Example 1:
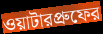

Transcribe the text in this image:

ওয়াটারপ্রুফের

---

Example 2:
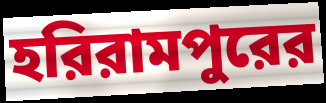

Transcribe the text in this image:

হরিরামপুরের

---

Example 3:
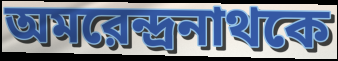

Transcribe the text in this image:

অমরেন্দ্রনাথকে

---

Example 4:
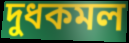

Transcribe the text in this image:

দুধকমল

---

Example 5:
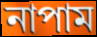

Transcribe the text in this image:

নাপাম